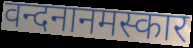
वन्दनानमस्कार